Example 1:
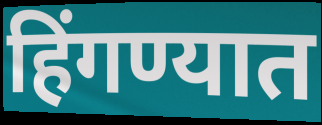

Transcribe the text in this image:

हिंगण्यात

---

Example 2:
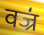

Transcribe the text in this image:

वज्रं॑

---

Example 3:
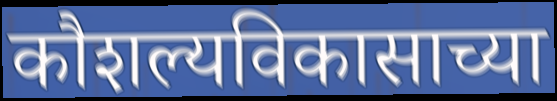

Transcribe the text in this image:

कौशल्यविकासाच्या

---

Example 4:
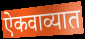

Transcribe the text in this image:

ऐकवाव्यात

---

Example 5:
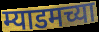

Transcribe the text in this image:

म्याडमच्या